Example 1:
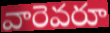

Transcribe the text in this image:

వారెవరూ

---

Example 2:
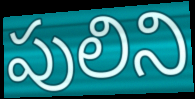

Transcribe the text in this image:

పులిని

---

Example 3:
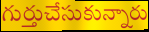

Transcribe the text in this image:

గుర్తుచేసుకున్నారు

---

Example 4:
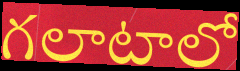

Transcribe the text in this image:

గలాటాలో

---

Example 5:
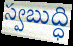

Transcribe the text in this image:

స్వబుద్ధి